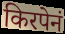
किरपेनं